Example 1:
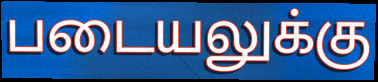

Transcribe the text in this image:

படையலுக்கு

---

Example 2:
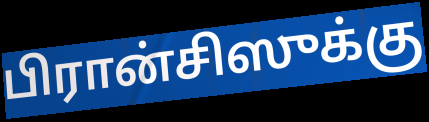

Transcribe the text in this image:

பிரான்சிஸுக்கு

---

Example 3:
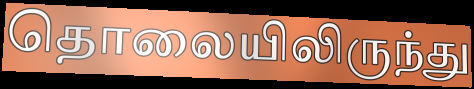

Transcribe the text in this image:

தொலையிலிருந்து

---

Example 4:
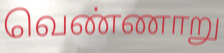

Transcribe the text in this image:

வெண்ணாறு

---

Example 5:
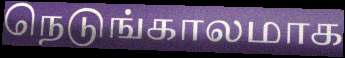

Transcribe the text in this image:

நெடுங்காலமாக